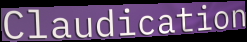
Claudication